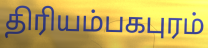
திரியம்பகபுரம்